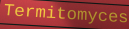
Termitomyces